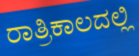
ರಾತ್ರಿಕಾಲದಲ್ಲಿ